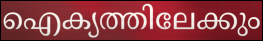
ഐക്യത്തിലേക്കും